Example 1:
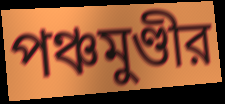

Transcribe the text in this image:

পঞ্চমুণ্ডীর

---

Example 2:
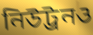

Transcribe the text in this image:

নিউট্রনও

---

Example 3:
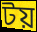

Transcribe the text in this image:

টয়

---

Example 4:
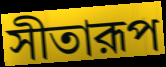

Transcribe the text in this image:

সীতারূপ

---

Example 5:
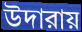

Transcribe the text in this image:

উদারায়